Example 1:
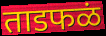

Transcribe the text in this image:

ताडफळं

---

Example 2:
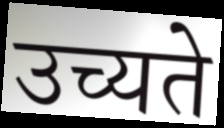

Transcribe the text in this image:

उच्यते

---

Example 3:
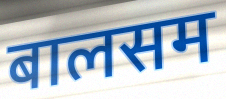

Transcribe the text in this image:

बालसम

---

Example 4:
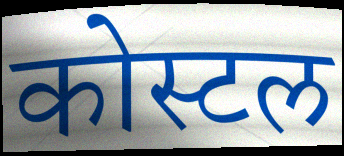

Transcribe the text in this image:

कोस्टल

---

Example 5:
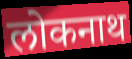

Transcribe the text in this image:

लोकनाथ